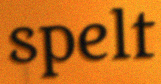
spelt